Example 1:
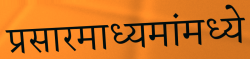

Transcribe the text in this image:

प्रसारमाध्यमांमध्ये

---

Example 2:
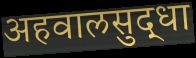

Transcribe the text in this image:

अहवालसुद्धा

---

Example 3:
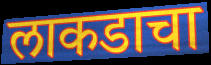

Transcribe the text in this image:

लाकडाचा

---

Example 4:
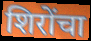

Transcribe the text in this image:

शिरोंचा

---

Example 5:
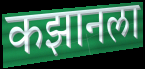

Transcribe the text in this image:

कझानला